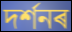
দৰ্শনৰ